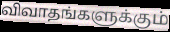
விவாதங்களுக்கும்